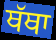
ਥੱਥਾ